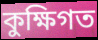
কুক্ষিগত